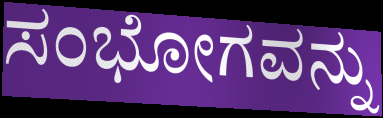
ಸಂಭೋಗವನ್ನು